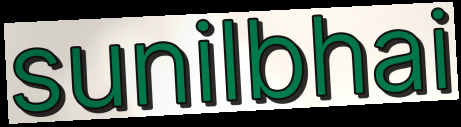
sunilbhai